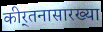
कीर्तनासारख्या